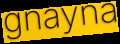
gnayna